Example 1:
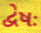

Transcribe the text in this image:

દ્વેષઃ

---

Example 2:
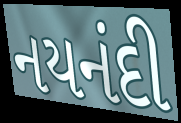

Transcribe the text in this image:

નયનંદી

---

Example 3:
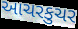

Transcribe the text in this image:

આચરકુચર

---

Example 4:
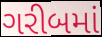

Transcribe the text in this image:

ગરીબમાં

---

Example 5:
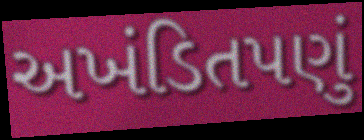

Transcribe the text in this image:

અખંડિતપણું